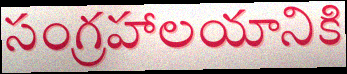
సంగ్రహాలయానికి